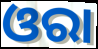
ଓରା